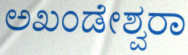
ಅಖಂಡೇಶ್ವರಾ